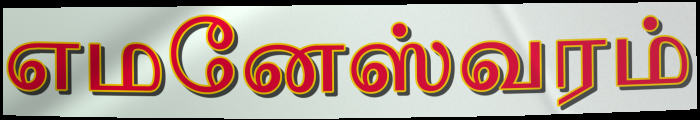
எமனேஸ்வரம்